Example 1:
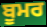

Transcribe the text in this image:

ਬੂਮਰ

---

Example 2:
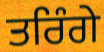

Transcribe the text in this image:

ਤਰਿੰਗੇ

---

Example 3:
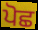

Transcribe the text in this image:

ਪੋਛ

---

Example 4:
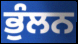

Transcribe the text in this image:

ਭੁੰਲਨ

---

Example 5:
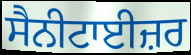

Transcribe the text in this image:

ਸੈਨੀਟਾਈਜ਼ਰ